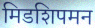
मिडशिपमन